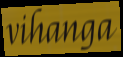
vihanga